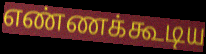
எண்ணக்கூடிய